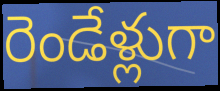
రెండేళ్లుగా